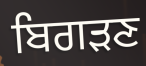
ਬਿਗੜਣ